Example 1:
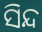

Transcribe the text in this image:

ସିନ୍ଦ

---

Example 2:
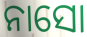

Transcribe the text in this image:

ନାସୋ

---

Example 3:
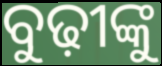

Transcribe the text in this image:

ବୁଢ଼ୀଙ୍କୁ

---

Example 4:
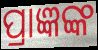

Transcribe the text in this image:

ପ୍ରାଜ୍ଞଙ୍କ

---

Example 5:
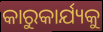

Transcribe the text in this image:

କାରୁକାର୍ଯ୍ୟକୁ